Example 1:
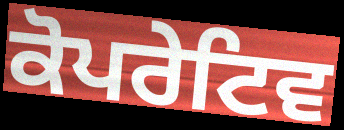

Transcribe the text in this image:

ਕੋਪਰੇਟਿਵ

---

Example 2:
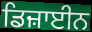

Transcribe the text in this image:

ਡਿਜ਼ਾਈਨ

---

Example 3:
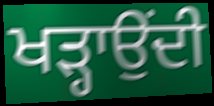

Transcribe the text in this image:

ਖੜ੍ਹਾਉਂਦੀ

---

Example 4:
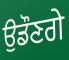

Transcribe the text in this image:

ਉਡੌਣਗੇ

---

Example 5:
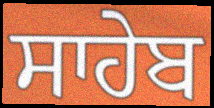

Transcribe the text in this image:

ਸਾਹੇਬ